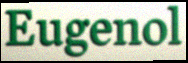
Eugenol